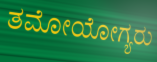
ತಮೋಯೋಗ್ಯರು